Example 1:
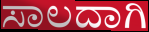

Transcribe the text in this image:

ಸಾಲದಾಗಿ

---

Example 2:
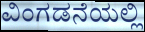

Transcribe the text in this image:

ವಿಂಗಡನೆಯಲ್ಲಿ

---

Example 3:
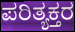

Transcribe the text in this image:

ಪರಿತ್ಯಕ್ತರ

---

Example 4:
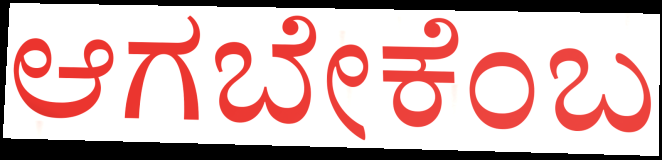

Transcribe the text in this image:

ಆಗಬೇಕೆಂಬ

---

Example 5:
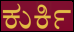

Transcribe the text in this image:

ಕುರ್ಕಿ